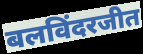
बलविंदरजीत